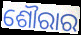
ଶୌରାର